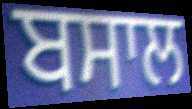
ਬਸਾਲ